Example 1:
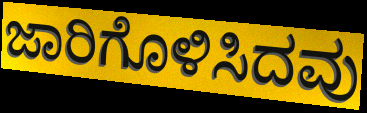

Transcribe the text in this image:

ಜಾರಿಗೊಳಿಸಿದವು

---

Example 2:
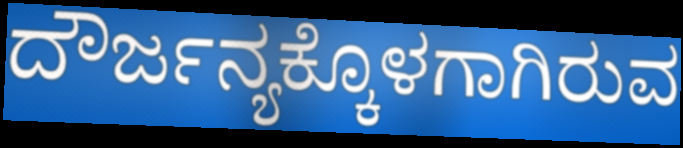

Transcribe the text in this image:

ದೌರ್ಜನ್ಯಕ್ಕೊಳಗಾಗಿರುವ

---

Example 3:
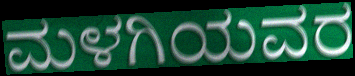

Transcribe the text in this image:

ಮಳಗಿಯವರ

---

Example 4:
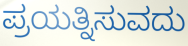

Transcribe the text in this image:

ಪ್ರಯತ್ನಿಸುವದು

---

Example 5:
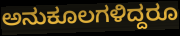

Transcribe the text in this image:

ಅನುಕೂಲಗಳಿದ್ದರೂ